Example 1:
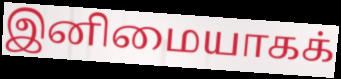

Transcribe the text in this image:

இனிமையாகக்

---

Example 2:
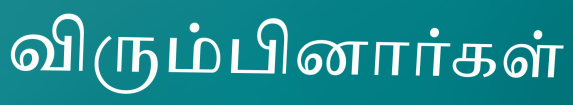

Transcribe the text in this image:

விரும்பினார்கள்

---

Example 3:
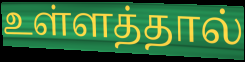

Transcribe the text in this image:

உள்ளத்தால்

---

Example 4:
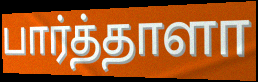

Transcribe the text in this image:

பார்த்தாளா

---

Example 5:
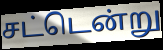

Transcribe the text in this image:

சட்டென்று